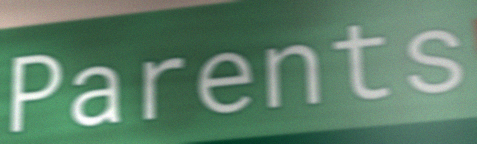
Parents